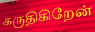
கருதிகிறேன்